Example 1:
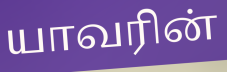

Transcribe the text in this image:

யாவரின்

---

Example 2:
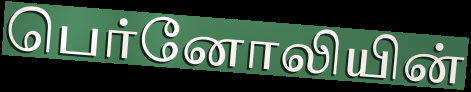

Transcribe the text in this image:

பெர்னோலியின்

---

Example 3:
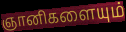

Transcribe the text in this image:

ஞானிகளையும்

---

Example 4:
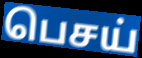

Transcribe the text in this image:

பெசய்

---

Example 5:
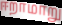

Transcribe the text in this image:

ஈறாமாறு